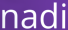
nadi